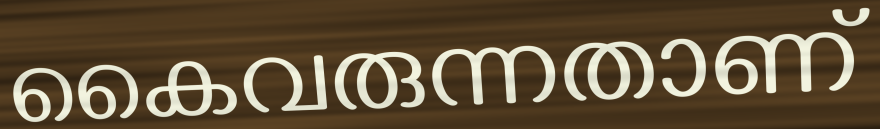
കൈവരുന്നതാണ്